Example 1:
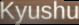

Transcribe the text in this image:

Kyushu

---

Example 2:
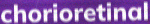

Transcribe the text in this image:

chorioretinal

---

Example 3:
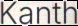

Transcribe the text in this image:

Kanth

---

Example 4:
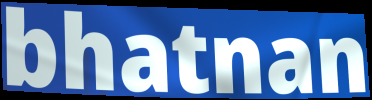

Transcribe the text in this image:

bhatnan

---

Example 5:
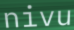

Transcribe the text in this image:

nivu